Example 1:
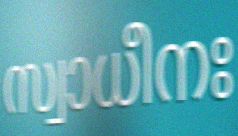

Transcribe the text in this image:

സ്വാധീനഃ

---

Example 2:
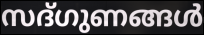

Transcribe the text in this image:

സദ്ഗുണങ്ങൾ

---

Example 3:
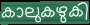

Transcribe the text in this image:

കാലുകഴുകി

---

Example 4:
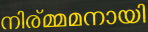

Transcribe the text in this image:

നിര്മ്മമനായി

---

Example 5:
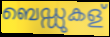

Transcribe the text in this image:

ബെഡ്ഡുകള്